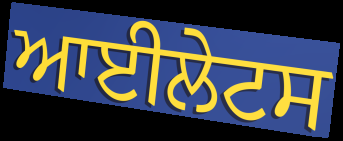
ਆਈਲੇਟਸ